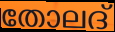
തോലദ്